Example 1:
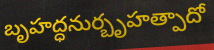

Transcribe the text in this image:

బృహద్ధనుర్బృహత్పాదో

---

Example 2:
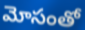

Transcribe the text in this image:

మోసంతో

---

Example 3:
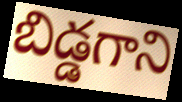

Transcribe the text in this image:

బిడ్డగాని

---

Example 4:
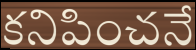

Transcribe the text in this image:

కనిపించనే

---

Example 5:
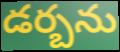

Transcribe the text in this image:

డర్బను